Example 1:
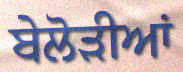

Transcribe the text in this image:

ਬੇਲੋੜੀਆਂ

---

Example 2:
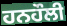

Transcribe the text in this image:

ਹਨਹੌਲੀ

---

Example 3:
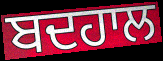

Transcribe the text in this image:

ਬਦਹਾਲ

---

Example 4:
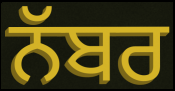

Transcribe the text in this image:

ਨੱਬਰ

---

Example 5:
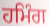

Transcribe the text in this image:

ਹਮਿੰਗ